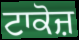
ਟਾਕੋਜ਼